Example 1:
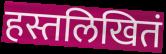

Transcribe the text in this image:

हस्तलिखितं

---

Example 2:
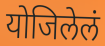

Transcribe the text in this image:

योजिलेलं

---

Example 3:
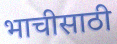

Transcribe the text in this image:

भाचीसाठी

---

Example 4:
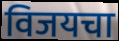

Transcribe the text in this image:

विजयचा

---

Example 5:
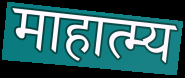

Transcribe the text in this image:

माहात्म्य